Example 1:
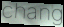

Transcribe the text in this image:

chang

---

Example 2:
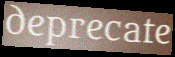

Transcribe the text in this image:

deprecate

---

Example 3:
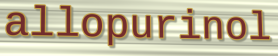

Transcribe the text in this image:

allopurinol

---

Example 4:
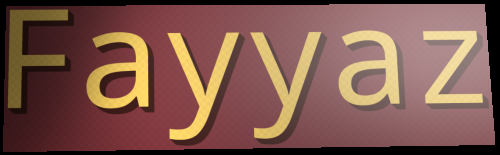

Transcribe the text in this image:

Fayyaz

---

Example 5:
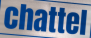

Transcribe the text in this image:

chattel